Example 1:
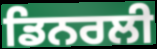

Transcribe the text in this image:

ਡਿਨਰਲੀ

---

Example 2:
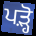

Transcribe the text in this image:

ਪ਼ੜ੍ਹੋ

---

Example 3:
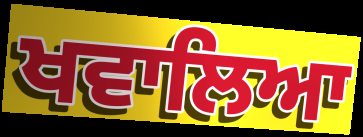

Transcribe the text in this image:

ਖਵਾਲਿਆ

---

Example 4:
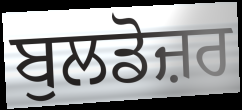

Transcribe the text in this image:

ਬੁਲਡੋਜ਼ਰ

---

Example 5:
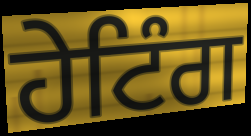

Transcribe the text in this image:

ਹੇਟਿੰਗ